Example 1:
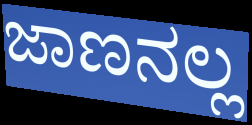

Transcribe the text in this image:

ಜಾಣನಲ್ಲ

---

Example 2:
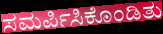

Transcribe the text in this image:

ಸಮರ್ಪಿಸಿಕೊಂಡಿತು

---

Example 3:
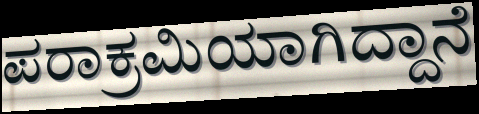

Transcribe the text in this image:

ಪರಾಕ್ರಮಿಯಾಗಿದ್ದಾನೆ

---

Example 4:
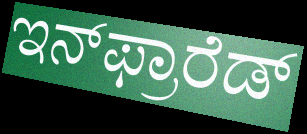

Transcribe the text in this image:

ಇನ್‌ಫ್ರಾರೆಡ್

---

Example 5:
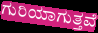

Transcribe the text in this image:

ಗುರಿಯಾಗುತ್ತವೆ